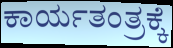
ಕಾರ್ಯತಂತ್ರಕ್ಕೆ